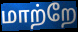
மாற்றே